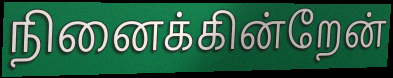
நினைக்கின்றேன்